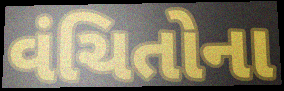
વંચિતોના